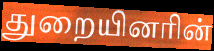
துறையினரின்